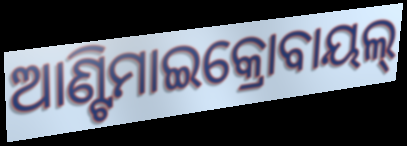
ଆଣ୍ଟିମାଇକ୍ରୋବାୟଲ୍